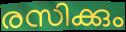
രസിക്കും